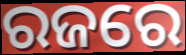
ରଜରେ